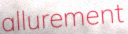
allurement